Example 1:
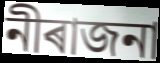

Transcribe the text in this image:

নীৰাজনা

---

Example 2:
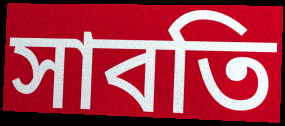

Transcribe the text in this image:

সাবতি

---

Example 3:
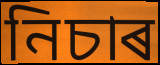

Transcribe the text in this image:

নিচাৰ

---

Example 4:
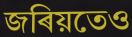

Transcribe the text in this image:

জৰিয়তেও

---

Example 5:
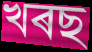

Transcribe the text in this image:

খৰছ